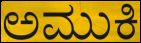
ಅಮುಕಿ